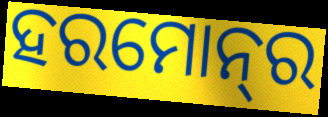
ହରମୋନ୍‍ର